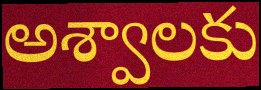
అశ్వాలకు